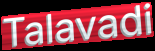
Talavadi